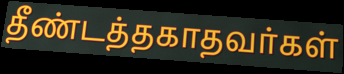
தீண்டத்தகாதவர்கள்